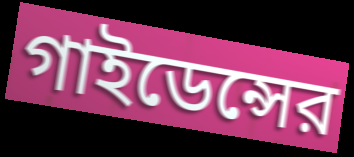
গাইডেন্সের